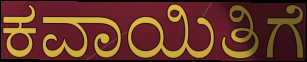
ಕವಾಯಿತಿಗೆ